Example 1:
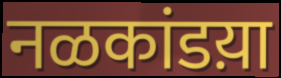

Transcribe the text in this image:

नळकांडय़ा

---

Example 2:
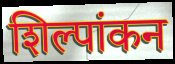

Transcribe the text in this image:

शिल्पांकन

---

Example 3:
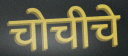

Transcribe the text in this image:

चोचीचे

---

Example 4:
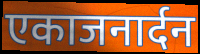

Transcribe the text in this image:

एकाजनार्दन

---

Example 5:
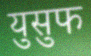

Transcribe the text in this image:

युसुफ